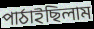
পাঠাইছিলাম